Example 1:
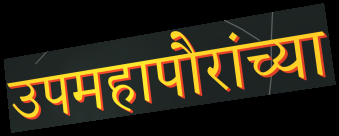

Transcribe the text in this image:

उपमहापौरांच्या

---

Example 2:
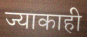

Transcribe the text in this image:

ज्याकाही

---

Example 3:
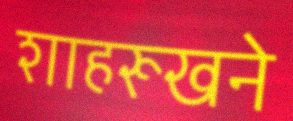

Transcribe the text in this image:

शाहरूखने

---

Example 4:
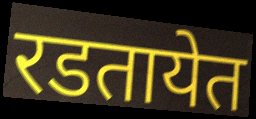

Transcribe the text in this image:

रडतायेत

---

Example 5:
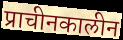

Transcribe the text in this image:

प्राचीनकालीन